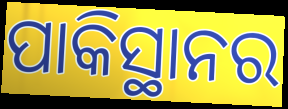
ପାକିସ୍ଥାନର